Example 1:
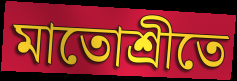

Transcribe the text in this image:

মাতোশ্রীতে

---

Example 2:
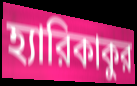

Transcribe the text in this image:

হ্যারিকাকুর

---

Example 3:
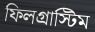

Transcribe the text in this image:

ফিলগ্রাস্টিম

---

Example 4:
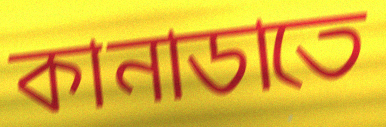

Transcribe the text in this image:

কানাডাতে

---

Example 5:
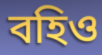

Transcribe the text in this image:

বহিও